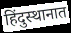
हिंदुस्थानात